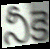
నీకె